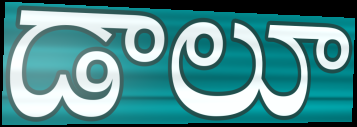
డాలూ